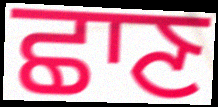
ਛਾਣ